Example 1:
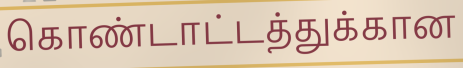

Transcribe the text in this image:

கொண்டாட்டத்துக்கான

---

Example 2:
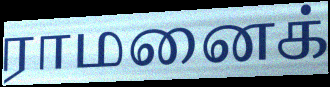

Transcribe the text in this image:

ராமனைக்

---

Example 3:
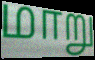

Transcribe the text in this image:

மாறு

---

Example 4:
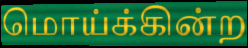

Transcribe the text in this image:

மொய்க்கின்ற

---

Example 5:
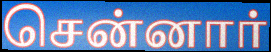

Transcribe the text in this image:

சென்னார்